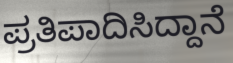
ಪ್ರತಿಪಾದಿಸಿದ್ದಾನೆ